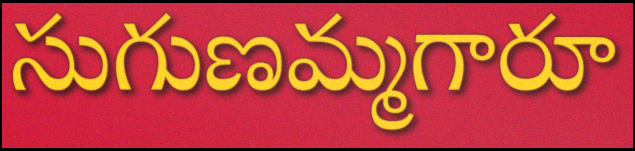
సుగుణమ్మగారూ